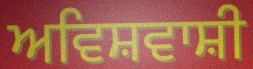
ਅਵਿਸ਼ਵਾਸ਼ੀ